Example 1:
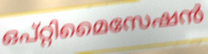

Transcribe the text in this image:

ഒപ്റ്റിമൈസേഷൻ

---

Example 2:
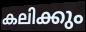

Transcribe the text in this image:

കലിക്കും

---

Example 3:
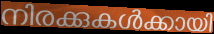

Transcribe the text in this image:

നിരക്കുകൾക്കായി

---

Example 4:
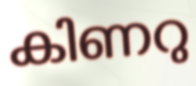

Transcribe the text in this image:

കിണറു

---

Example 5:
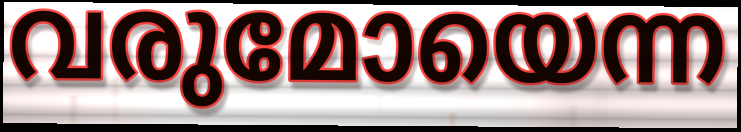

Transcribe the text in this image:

വരുമോയെന്ന